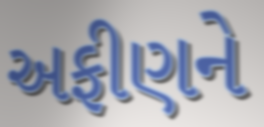
અફીણને